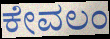
ಕೇವಲಂ